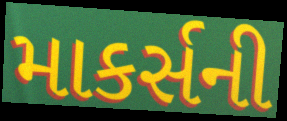
માકર્સની